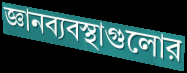
জ্ঞানব্যবস্থাগুলোর